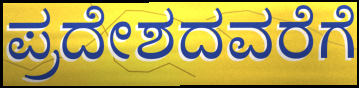
ಪ್ರದೇಶದವರೆಗೆ